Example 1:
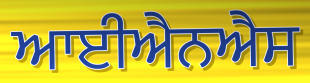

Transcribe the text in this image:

ਆਈਐਨਐਸ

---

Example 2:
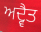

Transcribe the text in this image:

ਅਦ੍ਵੈਤ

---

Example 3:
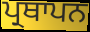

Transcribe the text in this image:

ਪ੍ਰਥਾਪਨ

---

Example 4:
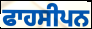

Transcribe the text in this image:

ਫਾਹਸੀਪਨ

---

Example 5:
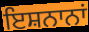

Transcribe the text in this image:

ਇਸ਼ਨਾਨਾਂ